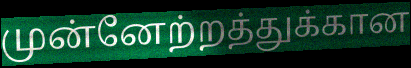
முன்னேற்றத்துக்கான